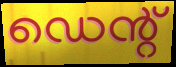
ഡെന്റ്